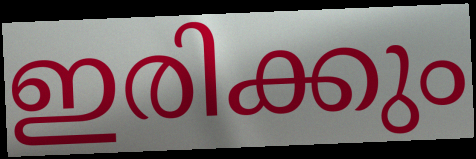
ഇരിക്കും